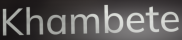
Khambete